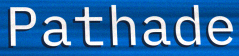
Pathade